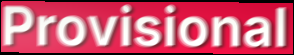
Provisional